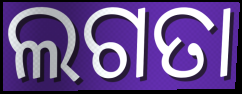
ଲଗତା